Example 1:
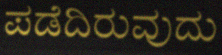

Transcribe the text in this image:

ಪಡೆದಿರುವುದು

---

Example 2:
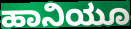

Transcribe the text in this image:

ಹಾನಿಯೂ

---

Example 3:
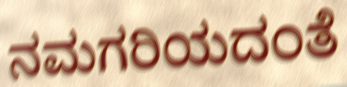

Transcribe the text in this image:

ನಮಗರಿಯದಂತೆ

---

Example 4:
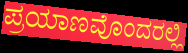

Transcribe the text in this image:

ಪ್ರಯಾಣವೊಂದರಲ್ಲಿ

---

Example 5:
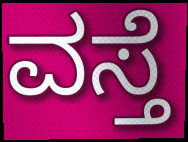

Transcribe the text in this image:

ವಸ್ತೆ